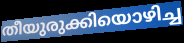
തീയുരുക്കിയൊഴിച്ച